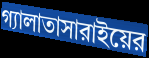
গ্যালাতাসারাইয়ের